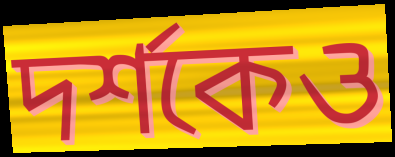
দৰ্শকেও